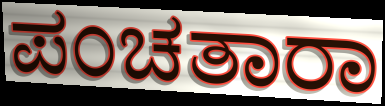
ಪಂಚತಾರಾ